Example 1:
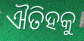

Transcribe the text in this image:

ଐତିହକୁ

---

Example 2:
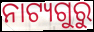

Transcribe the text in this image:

ନାଟ୍ୟଗୁରୁ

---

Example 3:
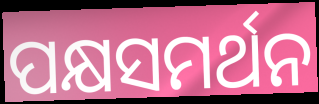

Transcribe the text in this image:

ପକ୍ଷସମର୍ଥନ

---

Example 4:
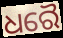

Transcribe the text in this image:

ଧରୈ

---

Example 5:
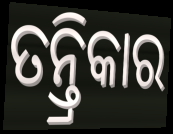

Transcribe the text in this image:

ତନ୍ତ୍ରିକାର